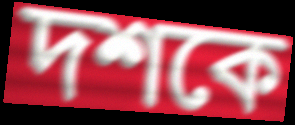
দশকে